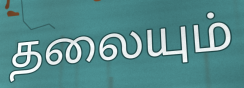
தலையும்